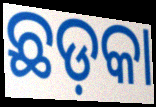
ଛଡ଼କା